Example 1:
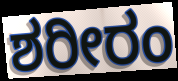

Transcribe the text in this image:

ಶರೀರಂ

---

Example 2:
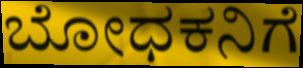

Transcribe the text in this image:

ಬೋಧಕನಿಗೆ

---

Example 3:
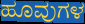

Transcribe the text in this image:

ಹೂವುಗಳ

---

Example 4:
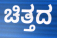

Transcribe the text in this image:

ಚಿತ್ತದ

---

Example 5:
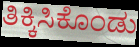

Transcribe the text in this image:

ತಿಕ್ಕಿಸಿಕೊಂಡು